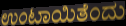
ಉಂಟಾಯಿತೆಂದು